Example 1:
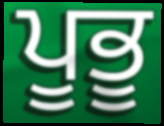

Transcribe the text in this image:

ਪੂਭੂ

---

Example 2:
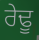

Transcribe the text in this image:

ਰੇਢੂ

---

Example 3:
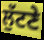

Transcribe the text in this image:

ਲੁੱਟਣੇ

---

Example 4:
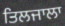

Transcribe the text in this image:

ਤਿਲਜਾਲਾ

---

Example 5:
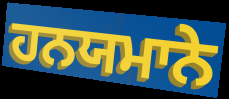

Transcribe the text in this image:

ਹਨਯਮਾਨੇ